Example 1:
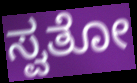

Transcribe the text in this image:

ಸ್ವತೋ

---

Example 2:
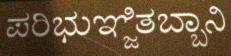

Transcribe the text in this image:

ಪರಿಭುಞ್ಜಿತಬ್ಬಾನಿ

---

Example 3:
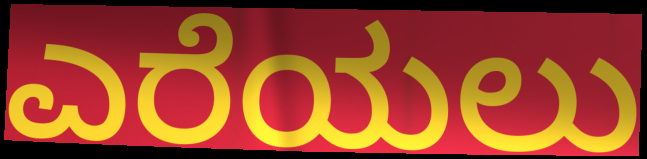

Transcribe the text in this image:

ಎರೆಯಲು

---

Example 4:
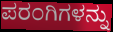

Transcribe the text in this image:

ಪರಂಗಿಗಳನ್ನು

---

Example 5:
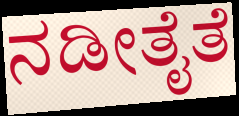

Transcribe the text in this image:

ನಡೀತೈತೆ